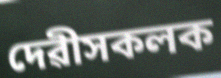
দেৱীসকলক